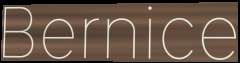
Bernice